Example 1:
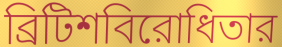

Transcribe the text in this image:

ব্রিটিশবিরোধিতার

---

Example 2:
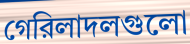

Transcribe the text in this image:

গেরিলাদলগুলো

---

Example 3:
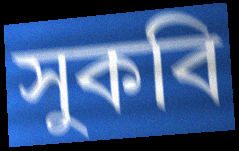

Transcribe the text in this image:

সুকবি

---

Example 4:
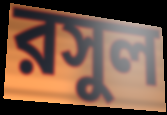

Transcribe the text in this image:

রসুল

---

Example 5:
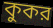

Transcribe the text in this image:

কুকর